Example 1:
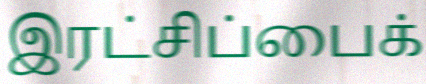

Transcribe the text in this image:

இரட்சிப்பைக்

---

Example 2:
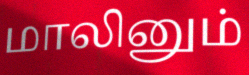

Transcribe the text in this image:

மாலினும்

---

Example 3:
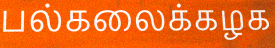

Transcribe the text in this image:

பல்கலைக்கழக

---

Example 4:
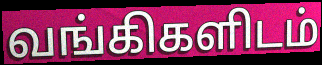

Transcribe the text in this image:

வங்கிகளிடம்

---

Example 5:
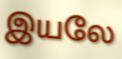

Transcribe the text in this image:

இயலே